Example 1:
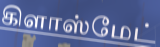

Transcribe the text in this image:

கிளாஸ்மேட்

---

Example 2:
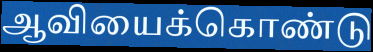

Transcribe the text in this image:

ஆவியைக்கொண்டு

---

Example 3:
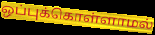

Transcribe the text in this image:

ஒப்புக்கொள்ளாமல்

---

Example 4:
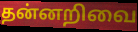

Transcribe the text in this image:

தன்னறிவை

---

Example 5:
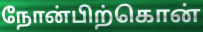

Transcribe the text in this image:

நோன்பிற்கொன்